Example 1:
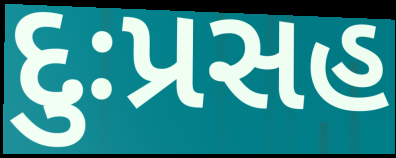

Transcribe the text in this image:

દુઃપ્રસહ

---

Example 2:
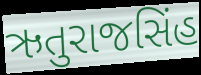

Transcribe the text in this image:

ઋતુરાજસિંહ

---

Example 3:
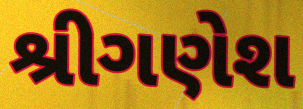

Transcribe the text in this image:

શ્રીગણેશ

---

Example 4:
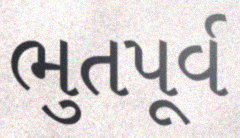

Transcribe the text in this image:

ભુતપૂર્વ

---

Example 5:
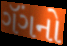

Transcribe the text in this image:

ગૅંગનો